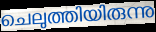
ചെലുത്തിയിരുന്നു